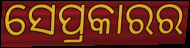
ସେପ୍ରକାରର